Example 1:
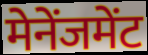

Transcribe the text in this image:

मेनेंजमेंट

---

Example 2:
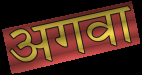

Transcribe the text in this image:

अगवा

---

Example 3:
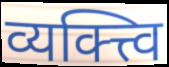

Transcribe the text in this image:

व्यक्त्त्वि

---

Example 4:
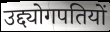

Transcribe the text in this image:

उद्द्योगपतियों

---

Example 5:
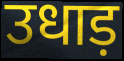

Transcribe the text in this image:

उधाड़